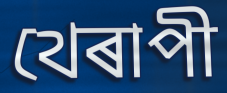
থেৰাপী